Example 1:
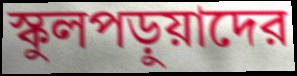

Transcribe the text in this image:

স্কুলপড়ুয়াদের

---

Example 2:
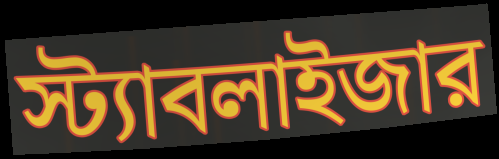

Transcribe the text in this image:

স্ট্যাবলাইজার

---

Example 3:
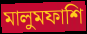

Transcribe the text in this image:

মালুমফাশি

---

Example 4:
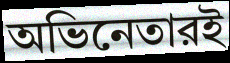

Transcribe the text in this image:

অভিনেতারই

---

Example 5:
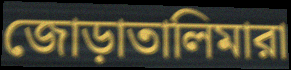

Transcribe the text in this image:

জোড়াতালিমারা